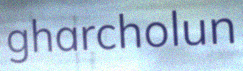
gharcholun